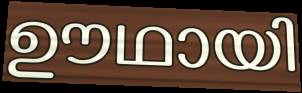
ഊഥായി